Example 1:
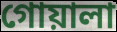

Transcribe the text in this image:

গোয়ালা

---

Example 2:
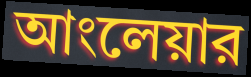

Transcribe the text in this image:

আংলেয়ার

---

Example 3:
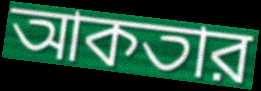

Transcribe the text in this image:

আকতার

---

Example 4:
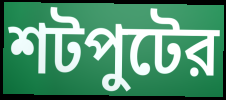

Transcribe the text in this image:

শটপুটের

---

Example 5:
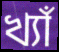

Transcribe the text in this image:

খ্যাঁ